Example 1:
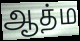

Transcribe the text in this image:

ஆத்ம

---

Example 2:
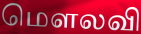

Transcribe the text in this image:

மௌலவி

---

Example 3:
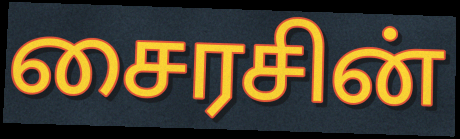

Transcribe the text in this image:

சைரசின்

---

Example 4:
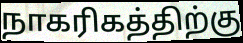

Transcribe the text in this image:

நாகரிகத்திற்கு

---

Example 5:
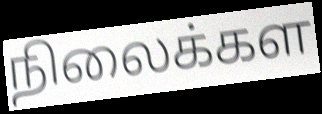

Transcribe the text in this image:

நிலைக்கள